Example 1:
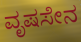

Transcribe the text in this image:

ವೃಷಸೇನ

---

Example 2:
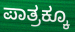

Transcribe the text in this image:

ಪಾತ್ರಕ್ಕೂ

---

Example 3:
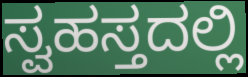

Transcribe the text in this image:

ಸ್ವಹಸ್ತದಲ್ಲಿ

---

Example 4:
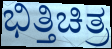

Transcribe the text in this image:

ಭಿತ್ತಿಚಿತ್ರ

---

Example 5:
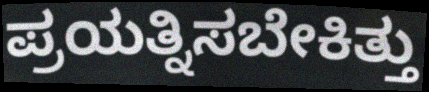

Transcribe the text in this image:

ಪ್ರಯತ್ನಿಸಬೇಕಿತ್ತು